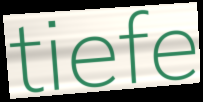
tiefe